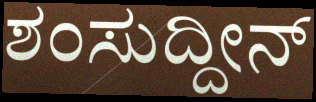
ಶಂಸುದ್ದೀನ್